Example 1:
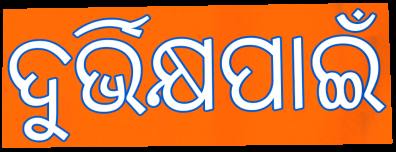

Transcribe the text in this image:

ଦୁର୍ଭିକ୍ଷପାଇଁ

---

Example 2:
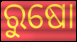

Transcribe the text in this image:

ରୁଷୋ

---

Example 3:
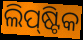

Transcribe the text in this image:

ଲିପ୍‌ଷ୍ଟିକ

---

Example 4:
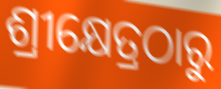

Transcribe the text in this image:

ଶ୍ରୀକ୍ଷେତ୍ରଠାରୁ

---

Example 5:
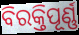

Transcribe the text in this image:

ବିରକ୍ତିପୂର୍ଣ୍ଣ